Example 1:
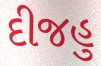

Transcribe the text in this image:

દીજહુ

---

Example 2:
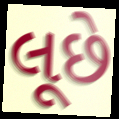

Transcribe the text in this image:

લૂછે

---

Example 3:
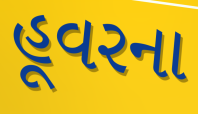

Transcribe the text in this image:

હૂવરના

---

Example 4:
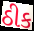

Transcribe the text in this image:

ઠીક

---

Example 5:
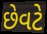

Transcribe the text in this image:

છેવટે